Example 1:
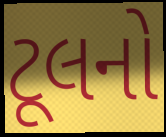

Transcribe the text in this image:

ટૂલનો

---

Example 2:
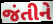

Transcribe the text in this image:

જંતીને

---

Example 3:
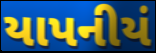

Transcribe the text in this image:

યાપનીયં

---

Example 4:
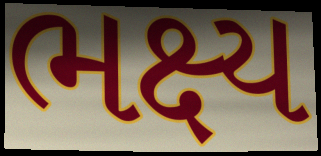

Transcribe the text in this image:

ભક્ષ્ય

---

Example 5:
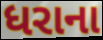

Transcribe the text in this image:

ધરાના